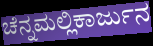
ಚೆನ್ನಮಲ್ಲಿಕಾರ್ಜುನ